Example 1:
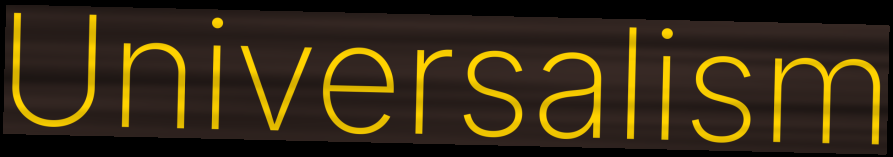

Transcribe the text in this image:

Universalism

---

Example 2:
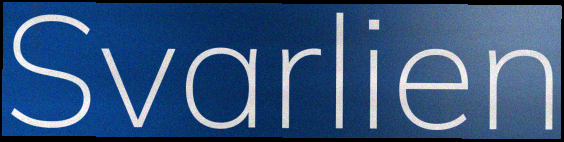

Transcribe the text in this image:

Svarlien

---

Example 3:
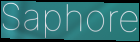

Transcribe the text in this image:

Saphore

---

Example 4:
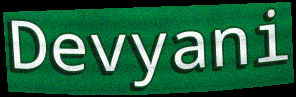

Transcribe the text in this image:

Devyani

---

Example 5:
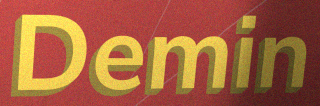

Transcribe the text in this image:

Demin